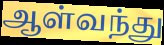
ஆள்வந்து